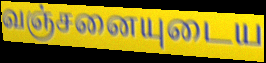
வஞ்சனையுடைய